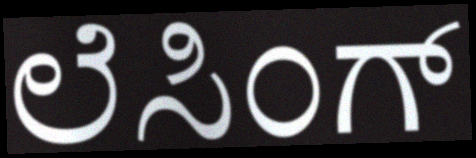
ಲೆಸಿಂಗ್